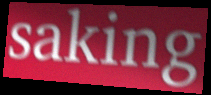
saking